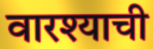
वारश्याची